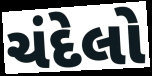
ચંદેલો